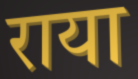
राया